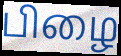
பிழை